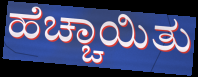
ಹೆಚ್ಚಾಯಿತು